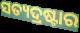
ସତ୍ୟଦ୍ରଷ୍ଟାର